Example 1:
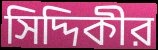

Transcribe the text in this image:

সিদ্দিকীর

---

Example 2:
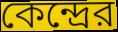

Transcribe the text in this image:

কেন্দ্রের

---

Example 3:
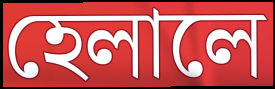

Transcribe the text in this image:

হেলালে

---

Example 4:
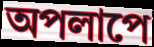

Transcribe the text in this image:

অপলাপে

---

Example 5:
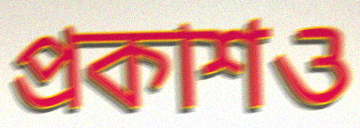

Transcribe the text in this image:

প্রকাশও